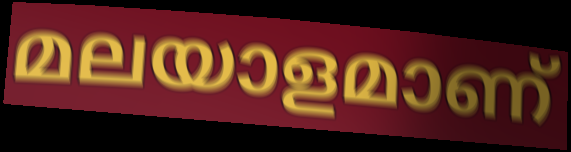
മലയാളമാണ്